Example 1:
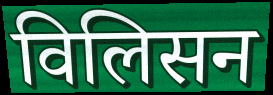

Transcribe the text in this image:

विलिसन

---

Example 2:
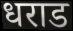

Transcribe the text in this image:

धराड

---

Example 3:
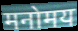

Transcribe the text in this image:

मनोमय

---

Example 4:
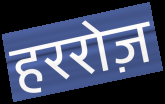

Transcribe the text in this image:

हररोज़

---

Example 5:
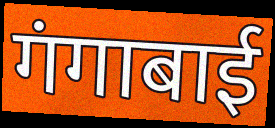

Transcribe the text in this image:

गंगाबाई